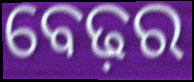
ବେଢ଼ର